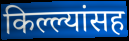
किल्ल्यांसह